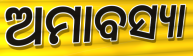
ଅମାବସ୍ୟା